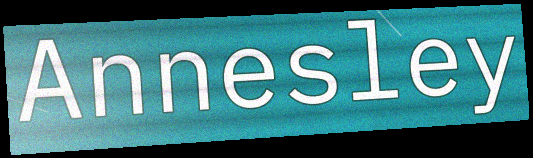
Annesley